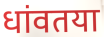
धांवतया